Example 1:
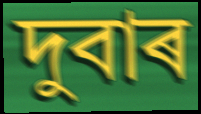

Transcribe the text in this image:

দুবাৰ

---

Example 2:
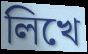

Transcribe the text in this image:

লিখে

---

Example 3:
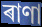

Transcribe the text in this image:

ৰাণা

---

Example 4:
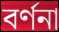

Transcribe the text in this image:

বৰ্ণনা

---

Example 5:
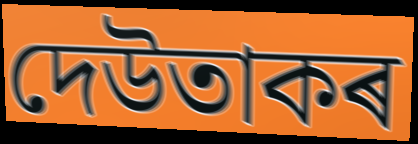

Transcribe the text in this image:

দেউতাকৰ